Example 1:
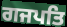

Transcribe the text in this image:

ਗਜਪਤਿ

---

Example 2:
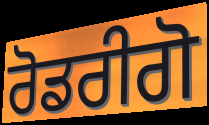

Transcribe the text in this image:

ਰੋਡਰੀਗੋ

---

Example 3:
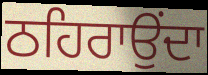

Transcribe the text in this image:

ਠਹਿਰਾਉਂਦਾ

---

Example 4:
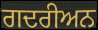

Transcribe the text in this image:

ਗਦਰੀਅਨ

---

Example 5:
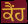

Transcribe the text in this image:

ਕੈਂਹ